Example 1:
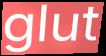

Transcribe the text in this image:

glut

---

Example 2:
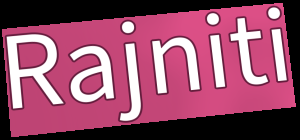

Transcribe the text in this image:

Rajniti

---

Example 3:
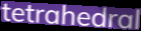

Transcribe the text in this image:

tetrahedral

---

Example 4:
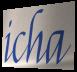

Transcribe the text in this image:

icha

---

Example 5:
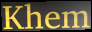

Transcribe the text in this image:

Khem